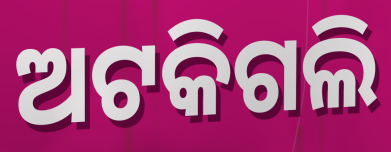
ଅଟକିଗଲି